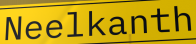
Neelkanth